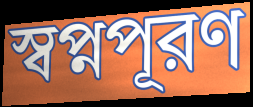
স্বপ্নপূরণ